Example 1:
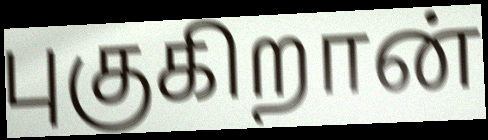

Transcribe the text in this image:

புகுகிறான்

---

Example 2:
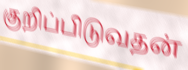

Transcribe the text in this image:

குறிப்பிடுவதன்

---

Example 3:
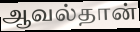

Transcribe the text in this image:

ஆவல்தான்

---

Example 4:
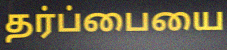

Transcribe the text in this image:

தர்ப்பையை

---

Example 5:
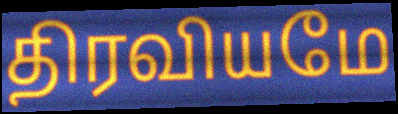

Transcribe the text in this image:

திரவியமே